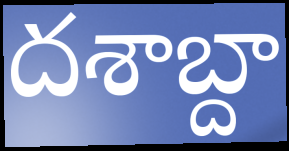
దశాబ్దా